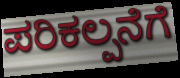
ಪರಿಕಲ್ಪನೆಗೆ